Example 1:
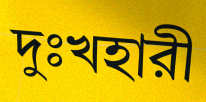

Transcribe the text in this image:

দুঃখহারী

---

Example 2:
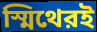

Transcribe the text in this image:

স্মিথেরই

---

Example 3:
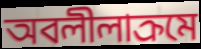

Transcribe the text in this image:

অবলীলাক্রমে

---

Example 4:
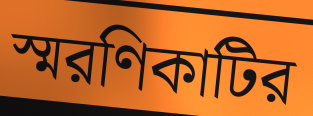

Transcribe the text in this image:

স্মরণিকাটির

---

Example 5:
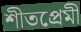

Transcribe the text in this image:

শীতপ্রেমী